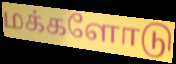
மக்களோடு